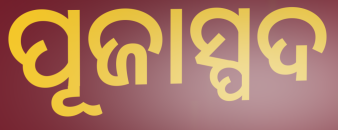
ପୂଜାସ୍ପଦ